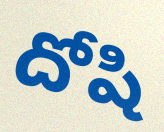
దోషి